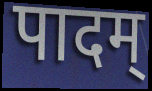
पादम्